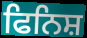
ਫਿਨਿਸ਼